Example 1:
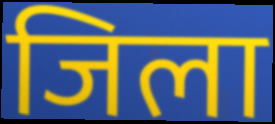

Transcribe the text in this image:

जिला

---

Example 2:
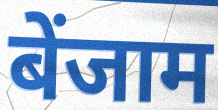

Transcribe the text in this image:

बेंजाम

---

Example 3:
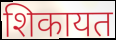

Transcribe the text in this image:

शिकायत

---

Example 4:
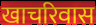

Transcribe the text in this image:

खाचरिवास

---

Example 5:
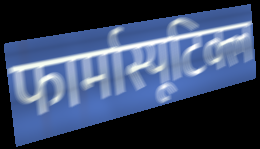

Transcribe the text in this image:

फार्मास्यूटिक्ल